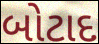
બોટાદ